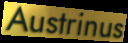
Austrinus